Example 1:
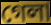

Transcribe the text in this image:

গেলা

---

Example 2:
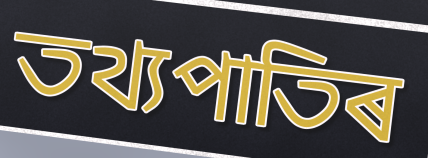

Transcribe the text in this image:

তথ্যপাতিৰ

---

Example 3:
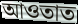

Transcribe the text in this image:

আওতাত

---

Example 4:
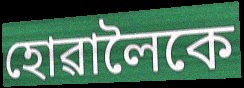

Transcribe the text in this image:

হোৱালৈকে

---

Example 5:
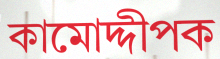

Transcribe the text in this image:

কামোদ্দীপক